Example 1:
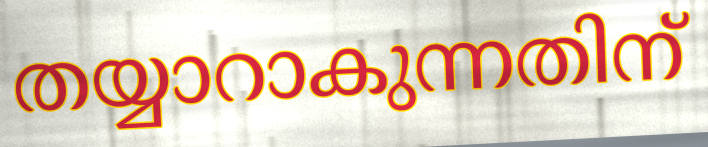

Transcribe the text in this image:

തയ്യാറാകുന്നതിന്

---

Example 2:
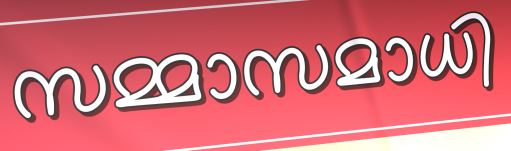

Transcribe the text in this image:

സമ്മാസമാധി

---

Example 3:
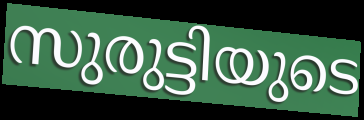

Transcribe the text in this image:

സുരുട്ടിയുടെ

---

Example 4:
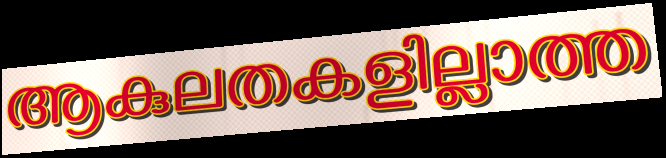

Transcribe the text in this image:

ആകുലതകളില്ലാത്ത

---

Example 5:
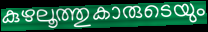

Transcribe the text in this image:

കുഴലൂത്തുകാരുടെയും